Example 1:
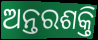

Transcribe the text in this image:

ଅନ୍ତରଶକ୍ତି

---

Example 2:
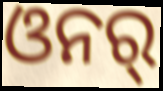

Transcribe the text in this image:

ଓନର୍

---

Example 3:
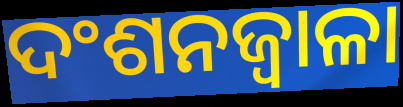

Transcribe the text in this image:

ଦଂଶନଜ୍ୱାଳା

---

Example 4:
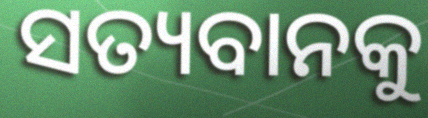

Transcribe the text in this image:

ସତ୍ୟବାନକୁ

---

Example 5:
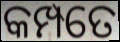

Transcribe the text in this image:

କମ୍ପତେ